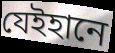
যেইহানে